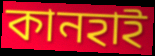
কানহাই